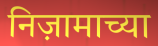
निज़ामाच्या